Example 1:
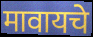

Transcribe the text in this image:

मावायचे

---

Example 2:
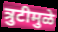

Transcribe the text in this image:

त्रुटीमुळे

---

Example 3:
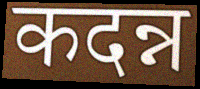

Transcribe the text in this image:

कदन्न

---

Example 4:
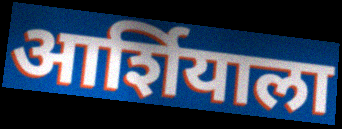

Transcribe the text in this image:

आर्शियाला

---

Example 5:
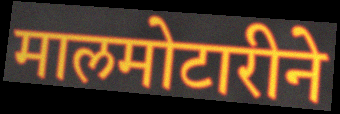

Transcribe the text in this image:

मालमोटारीने